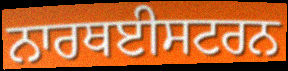
ਨਾਰਥਈਸਟਰਨ